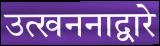
उत्खननाद्वारे